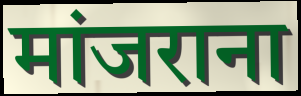
मांजराना